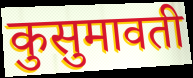
कुसुमावती